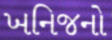
ખનિજનો